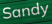
Sandy